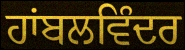
ਹਾਂਬਲਵਿੰਦਰ